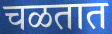
चळतात